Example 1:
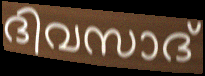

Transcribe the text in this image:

ദിവസാദ്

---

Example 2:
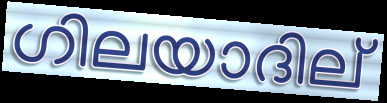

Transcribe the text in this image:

ഗിലയാദില്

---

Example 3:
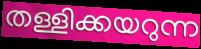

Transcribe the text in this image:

തള്ളിക്കയറുന്ന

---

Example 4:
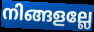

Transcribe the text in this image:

നിങ്ങളല്ലേ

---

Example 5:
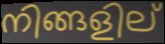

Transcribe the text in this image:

നിങ്ങളില്